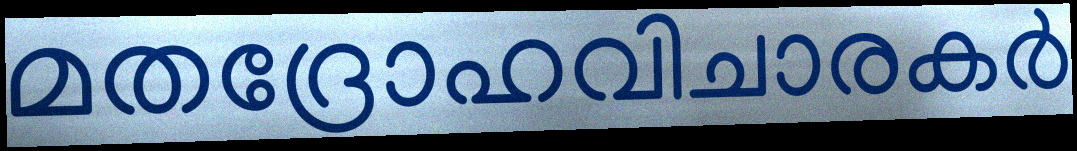
മതദ്രോഹവിചാരകർ